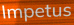
Impetus